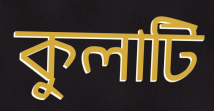
কুলাটি